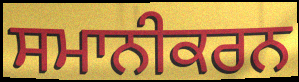
ਸਮਾਨੀਕਰਨ